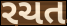
રચત